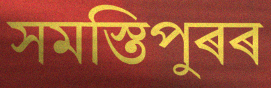
সমস্তিপুৰৰ